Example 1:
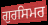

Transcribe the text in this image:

ਗੁਰਸਿਮਰ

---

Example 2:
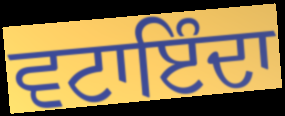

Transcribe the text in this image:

ਵਟਾਇੰਦਾ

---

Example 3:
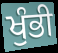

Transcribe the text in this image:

ਖੁੰਭੀ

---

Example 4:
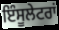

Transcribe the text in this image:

ਇੰਸੂਲੇਟਰਾਂ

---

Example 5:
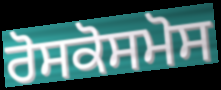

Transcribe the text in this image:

ਰੋਸਕੋਸਮੋਸ